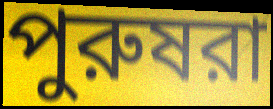
পুরুষরা